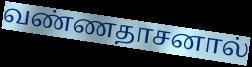
வண்ணதாசனால்